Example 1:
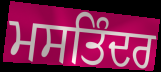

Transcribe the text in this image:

ਮਸਤਿੰਦਰ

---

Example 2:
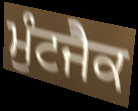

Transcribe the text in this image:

ਮੁੰਟਜੈਕ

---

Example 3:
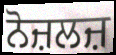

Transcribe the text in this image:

ਨੋਜ਼ਲਜ਼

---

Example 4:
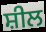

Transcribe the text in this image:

ਸ਼ੀਲ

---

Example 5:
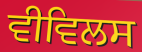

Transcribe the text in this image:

ਵੀਵਿਲਸ